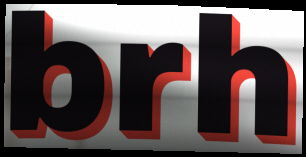
brh